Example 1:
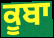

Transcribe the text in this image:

ਕੂਬਾ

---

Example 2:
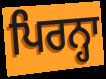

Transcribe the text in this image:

ਪਿਰਨ੍ਹਾ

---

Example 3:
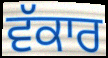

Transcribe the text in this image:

ਵੱਕਾਰ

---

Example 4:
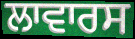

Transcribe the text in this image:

ਲਾਵਾਰਸ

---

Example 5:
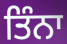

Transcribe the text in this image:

ਤਿੰਨਾ